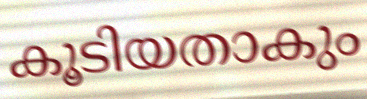
കൂടിയതാകും